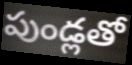
పుండ్లతో